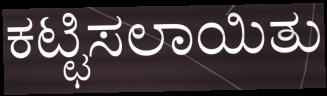
ಕಟ್ಟಿಸಲಾಯಿತು